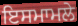
ਇਸਮਾਮਲੇ